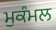
ਮੁਕੰਮਲ